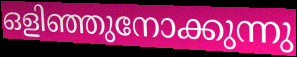
ഒളിഞ്ഞുനോക്കുന്നു